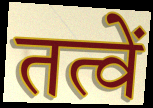
तत्वें